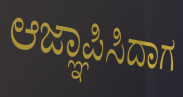
ಆಜ್ಞಾಪಿಸಿದಾಗ